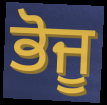
ਭੋਜੂ